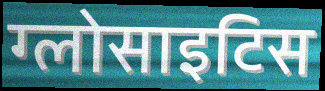
ग्लोसाइटिस